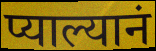
प्याल्यानं